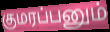
குமரப்பனும்